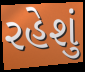
રહેશું